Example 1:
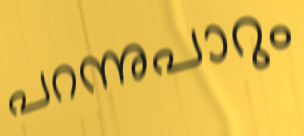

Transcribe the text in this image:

പറന്നുപാറും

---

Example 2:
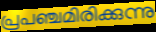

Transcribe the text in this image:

പ്രപഞ്ചമിരിക്കുന്നു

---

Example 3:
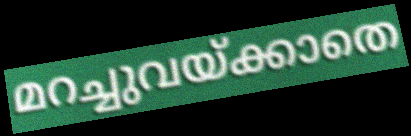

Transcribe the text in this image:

മറച്ചുവയ്ക്കാതെ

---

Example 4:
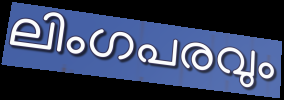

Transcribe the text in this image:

ലിംഗപരവും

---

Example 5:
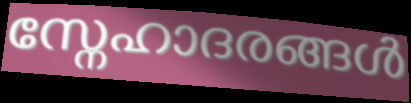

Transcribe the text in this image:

സ്നേഹാദരങ്ങൾ